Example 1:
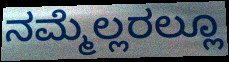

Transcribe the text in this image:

ನಮ್ಮೆಲ್ಲರಲ್ಲೂ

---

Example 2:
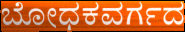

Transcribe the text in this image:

ಬೋಧಕವರ್ಗದ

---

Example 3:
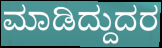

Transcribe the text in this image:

ಮಾಡಿದ್ದುದರ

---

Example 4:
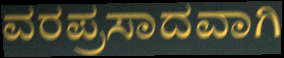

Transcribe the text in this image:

ವರಪ್ರಸಾದವಾಗಿ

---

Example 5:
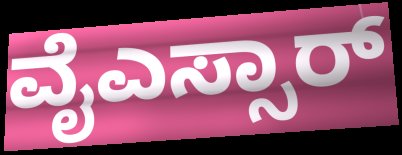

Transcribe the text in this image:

ವೈಎಸ್ಸಾರ್